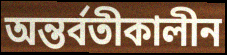
অন্তর্বতীকালীন